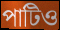
পাটিও